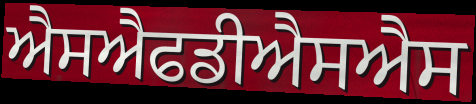
ਐਸਐਫਡੀਐਸਐਸ